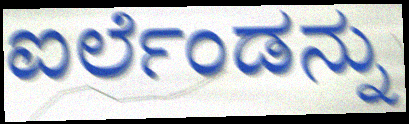
ಐರ್ಲೆಂಡನ್ನು